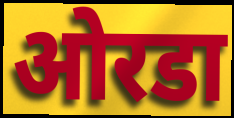
ओरडा